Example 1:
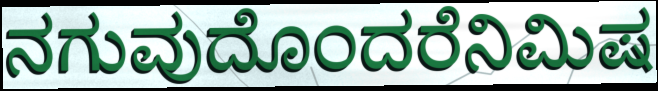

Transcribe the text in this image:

ನಗುವುದೊಂದರೆನಿಮಿಷ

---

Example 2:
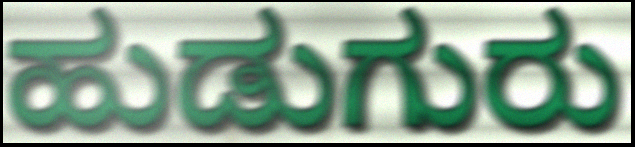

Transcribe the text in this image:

ಹುಡುಗುರು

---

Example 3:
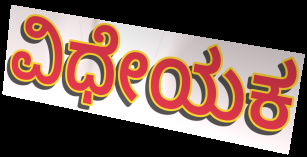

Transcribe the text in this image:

ವಿಧೇಯಕ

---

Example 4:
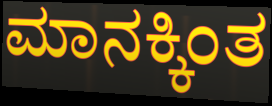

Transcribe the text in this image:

ಮಾನಕ್ಕಿಂತ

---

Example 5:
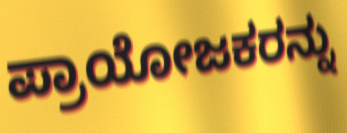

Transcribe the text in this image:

ಪ್ರಾಯೋಜಕರನ್ನು